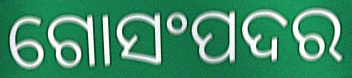
ଗୋସଂପଦର